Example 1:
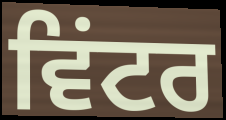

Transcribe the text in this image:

ਵਿਂਟਰ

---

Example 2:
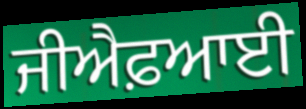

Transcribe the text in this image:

ਜੀਐਫ਼ਆਈ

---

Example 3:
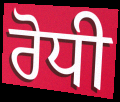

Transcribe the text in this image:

ਰੋਧੀ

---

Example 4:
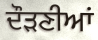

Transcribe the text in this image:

ਦੌੜਣੀਆਂ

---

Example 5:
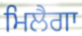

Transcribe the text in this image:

ਮਿਲੈਗਾ